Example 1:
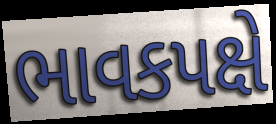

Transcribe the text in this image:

ભાવકપક્ષે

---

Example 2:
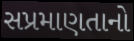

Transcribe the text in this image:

સપ્રમાણતાનો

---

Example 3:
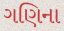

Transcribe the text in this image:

ગણિના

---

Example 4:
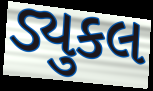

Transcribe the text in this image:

ડ્યુકલ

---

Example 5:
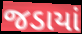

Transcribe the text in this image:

જડાયાં